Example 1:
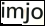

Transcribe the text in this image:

imjo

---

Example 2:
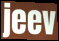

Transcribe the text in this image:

jeev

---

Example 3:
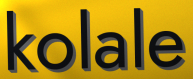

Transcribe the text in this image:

kolale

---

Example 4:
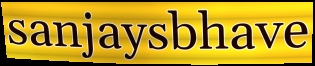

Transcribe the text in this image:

sanjaysbhave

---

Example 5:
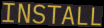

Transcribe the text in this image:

INSTALL